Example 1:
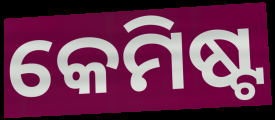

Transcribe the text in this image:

କେମିଷ୍ଟ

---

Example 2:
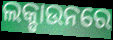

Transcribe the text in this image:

ଲକ୍ଡାଉନରେ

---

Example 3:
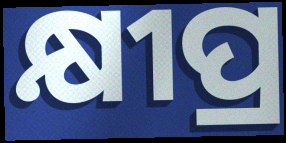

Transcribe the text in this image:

କ୍ଷୀପ୍ର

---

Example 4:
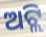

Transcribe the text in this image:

ଅଟ୍ଲି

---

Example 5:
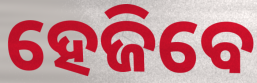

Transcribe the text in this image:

ହେଜିବେ